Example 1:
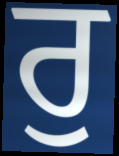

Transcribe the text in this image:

ਰੁ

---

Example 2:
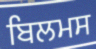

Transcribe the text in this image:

ਬਿਲਮਸ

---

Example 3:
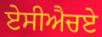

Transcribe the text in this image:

ਏਸੀਐਚਏ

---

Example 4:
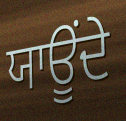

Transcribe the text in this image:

ਯਾਊਂਦੇ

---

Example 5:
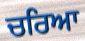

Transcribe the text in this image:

ਚਰਿਆ